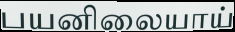
பயனிலையாய்